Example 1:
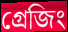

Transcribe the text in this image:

গ্রেজিং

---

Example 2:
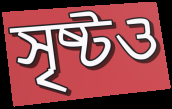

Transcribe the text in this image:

সৃষ্টও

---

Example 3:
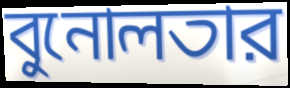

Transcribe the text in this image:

বুনোলতার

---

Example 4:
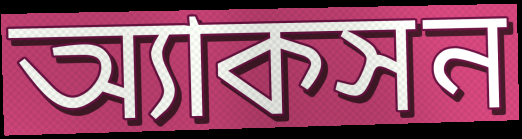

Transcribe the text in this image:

অ্যাকসন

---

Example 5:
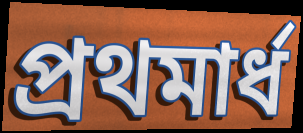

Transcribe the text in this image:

প্রথমার্ধ